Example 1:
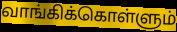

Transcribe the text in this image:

வாங்கிக்கொள்ளும்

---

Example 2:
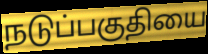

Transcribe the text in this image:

நடுப்பகுதியை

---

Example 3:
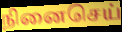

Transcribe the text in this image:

நினைசெய்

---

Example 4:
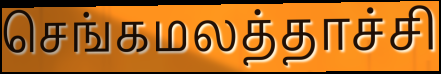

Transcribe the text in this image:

செங்கமலத்தாச்சி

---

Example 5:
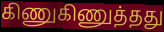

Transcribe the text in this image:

கிணுகிணுத்தது